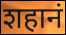
शहानं